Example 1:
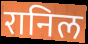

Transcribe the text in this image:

रानिल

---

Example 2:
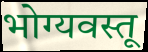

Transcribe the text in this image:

भोग्यवस्तू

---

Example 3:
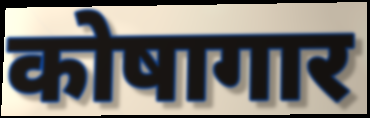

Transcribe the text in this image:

कोषागार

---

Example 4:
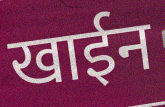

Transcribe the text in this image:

खाईन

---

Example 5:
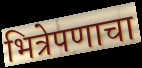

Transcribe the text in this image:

भित्रेपणाचा